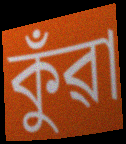
কুঁৱা